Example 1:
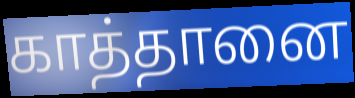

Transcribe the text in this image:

காத்தானை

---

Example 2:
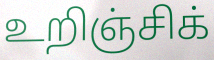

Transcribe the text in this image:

உறிஞ்சிக்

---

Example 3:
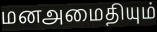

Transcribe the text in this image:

மனஅமைதியும்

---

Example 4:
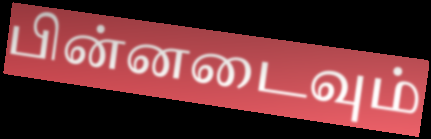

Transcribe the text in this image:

பின்னடைவும்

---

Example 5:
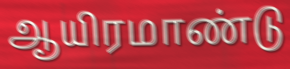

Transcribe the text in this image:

ஆயிரமாண்டு